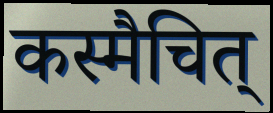
कस्मैचित्